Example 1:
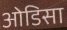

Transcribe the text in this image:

ओडिसा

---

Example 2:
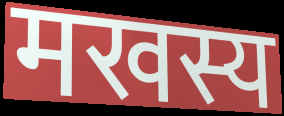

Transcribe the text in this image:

मखस्य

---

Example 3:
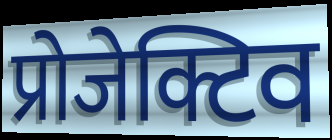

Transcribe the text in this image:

प्रोजेक्टिव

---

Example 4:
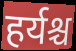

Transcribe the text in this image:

हर्यश्च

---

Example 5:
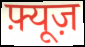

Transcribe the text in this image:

फ़्यूज़